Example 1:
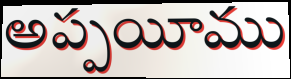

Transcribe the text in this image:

అప్పయీము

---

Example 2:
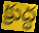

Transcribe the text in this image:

క్రుద్ధ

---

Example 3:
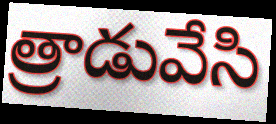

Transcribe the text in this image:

త్రాడువేసి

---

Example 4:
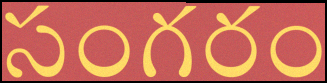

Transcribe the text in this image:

సంగరం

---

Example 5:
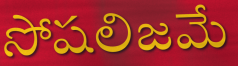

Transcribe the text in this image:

సోషలిజమే